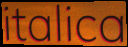
italica